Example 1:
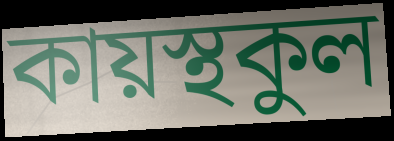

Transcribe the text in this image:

কায়স্থকুল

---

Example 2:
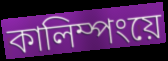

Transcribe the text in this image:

কালিম্পংয়ে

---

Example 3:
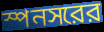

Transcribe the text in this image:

স্পনসরের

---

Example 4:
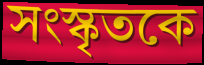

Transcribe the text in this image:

সংস্কৃতকে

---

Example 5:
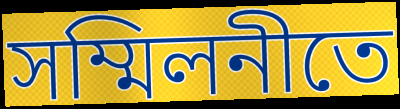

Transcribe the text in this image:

সম্মিলনীতে